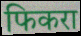
फिकरा